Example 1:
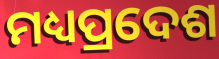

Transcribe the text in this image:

ମଧ୍ୟପ୍ରଦେଶ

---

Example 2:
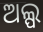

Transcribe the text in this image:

ଅଲ୍ପ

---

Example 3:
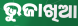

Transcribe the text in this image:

ଭୁଜାଖିଆ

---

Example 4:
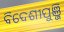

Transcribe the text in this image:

ବିଦେଶୀପୁଞ୍ଜି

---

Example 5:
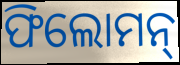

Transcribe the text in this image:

ଫିଲୋମନ୍